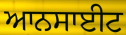
ਆਨਸਾਈਟ